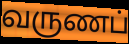
வருணப்